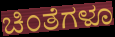
ಚಿಂತೆಗಳೂ